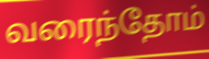
வரைந்தோம்